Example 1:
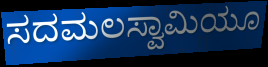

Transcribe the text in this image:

ಸದಮಲಸ್ವಾಮಿಯೂ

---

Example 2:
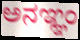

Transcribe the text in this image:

ಅನಞ್ಞಂ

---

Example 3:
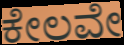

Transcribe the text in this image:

ಕೇಲವೇ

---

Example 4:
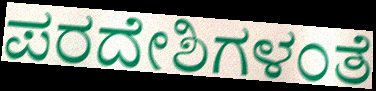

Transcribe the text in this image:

ಪರದೇಶಿಗಳಂತೆ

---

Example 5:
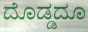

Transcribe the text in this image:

ದೊಡ್ಡದೂ